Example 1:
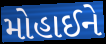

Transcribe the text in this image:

મોહાઈને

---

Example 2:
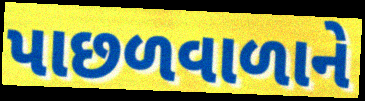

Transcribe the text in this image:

પાછળવાળાને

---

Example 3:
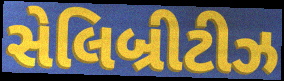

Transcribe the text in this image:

સેલિબ્રીટીઝ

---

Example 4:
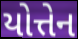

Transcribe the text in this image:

યોત્તેન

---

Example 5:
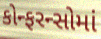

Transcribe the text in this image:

કોન્ફરન્સોમાં